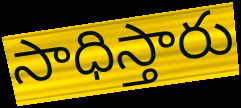
సాధిస్తారు